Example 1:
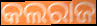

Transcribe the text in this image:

କଲରାଜ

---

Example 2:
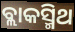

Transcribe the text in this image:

ବ୍ଲାକସ୍ମିଥ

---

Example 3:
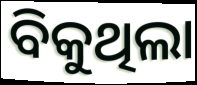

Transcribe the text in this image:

ବିକୁଥିଲା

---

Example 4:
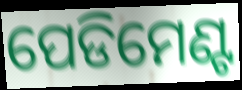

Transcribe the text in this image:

ପେଡିମେଣ୍ଟ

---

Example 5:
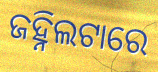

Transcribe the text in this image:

ଜହ୍ନିଲଟାରେ